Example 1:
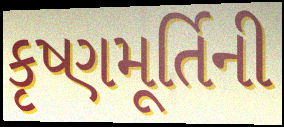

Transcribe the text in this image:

કૃષ્ણમૂર્તિની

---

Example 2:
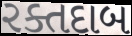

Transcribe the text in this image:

રક્તદાબ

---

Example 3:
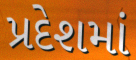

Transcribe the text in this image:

પ્રદેશમાં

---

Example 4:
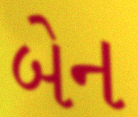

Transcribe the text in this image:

બેન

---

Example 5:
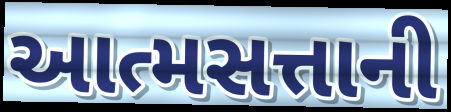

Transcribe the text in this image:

આત્મસત્તાની